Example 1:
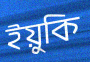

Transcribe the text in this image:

ইয়ুকি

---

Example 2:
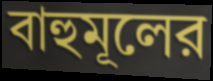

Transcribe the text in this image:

বাহুমূলের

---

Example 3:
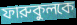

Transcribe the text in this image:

ফারুকুলকে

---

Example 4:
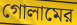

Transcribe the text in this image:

গোলামের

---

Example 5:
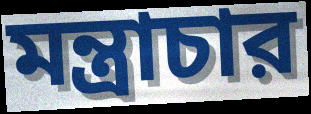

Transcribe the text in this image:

মন্ত্রাচার